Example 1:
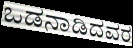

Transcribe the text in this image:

ಒಡನಾಡಿದವರ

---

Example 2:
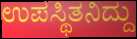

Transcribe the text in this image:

ಉಪಸ್ಥಿತನಿದ್ದು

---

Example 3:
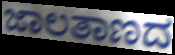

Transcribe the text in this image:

ಜಾಲತಾಣದ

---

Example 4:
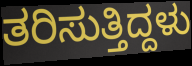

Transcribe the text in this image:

ತರಿಸುತ್ತಿದ್ದಳು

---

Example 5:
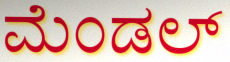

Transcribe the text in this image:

ಮೆಂಡಲ್